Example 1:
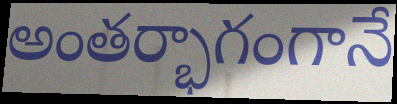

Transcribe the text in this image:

అంతర్భాగంగానే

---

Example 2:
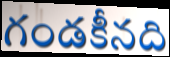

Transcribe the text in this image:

గండకీనది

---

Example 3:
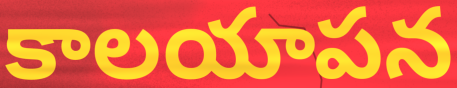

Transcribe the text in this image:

కాలయాపన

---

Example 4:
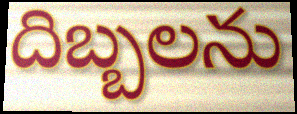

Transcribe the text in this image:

దిబ్బలను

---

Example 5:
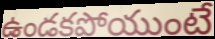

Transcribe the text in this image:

ఉండకపోయుంటే